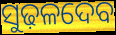
ସୁଢ଼ଳଦେବ